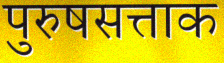
पुरुषसत्ताक